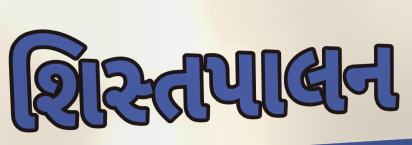
શિસ્તપાલન